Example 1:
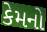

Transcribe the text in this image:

કેમનો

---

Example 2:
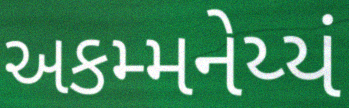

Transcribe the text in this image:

અકમ્મનેય્યં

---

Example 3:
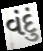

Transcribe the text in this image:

વંદું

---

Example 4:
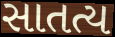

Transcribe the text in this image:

સાતત્ય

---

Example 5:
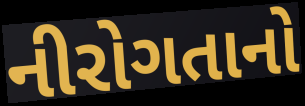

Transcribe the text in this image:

નીરોગતાનો